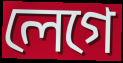
লেগে